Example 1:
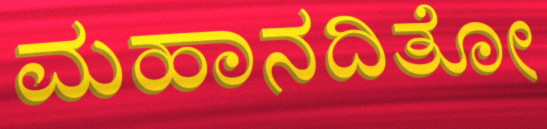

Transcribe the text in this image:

ಮಹಾನದಿತೋ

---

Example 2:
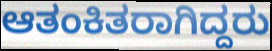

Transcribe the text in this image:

ಆತಂಕಿತರಾಗಿದ್ದರು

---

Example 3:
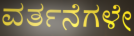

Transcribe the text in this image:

ವರ್ತನೆಗಳೇ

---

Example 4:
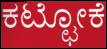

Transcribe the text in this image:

ಕಟ್ಟೋಕೆ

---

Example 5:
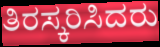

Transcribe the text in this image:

ತಿರಸ್ಕರಿಸಿದರು